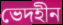
ভেদহীন